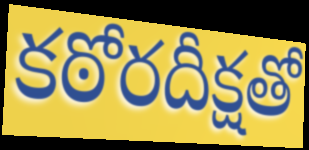
కఠోరదీక్షతో